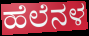
ಹೆಲೆನಳ